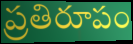
ప్రతిరూపం